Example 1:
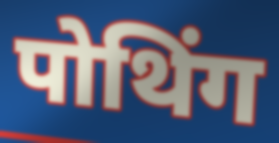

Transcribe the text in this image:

पोथिंग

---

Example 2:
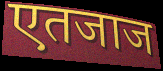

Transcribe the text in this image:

एतजाज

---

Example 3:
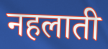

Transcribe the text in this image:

नहलाती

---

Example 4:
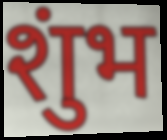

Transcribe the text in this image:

शुंभ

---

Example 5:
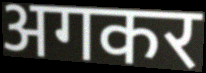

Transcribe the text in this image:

अगकर